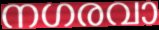
നഗരവാ